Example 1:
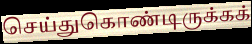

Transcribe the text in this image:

செய்துகொண்டிருக்கக்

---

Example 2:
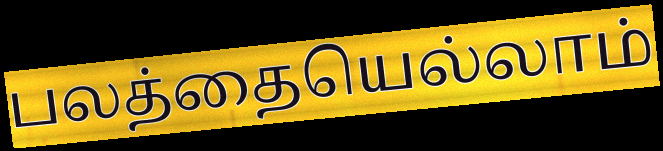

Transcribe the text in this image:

பலத்தையெல்லாம்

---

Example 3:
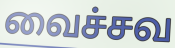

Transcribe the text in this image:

வைச்சவ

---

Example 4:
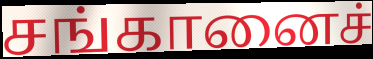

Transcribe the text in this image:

சங்கானைச்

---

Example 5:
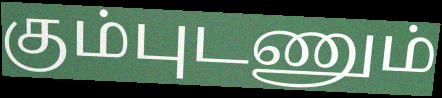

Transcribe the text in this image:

கும்புடணும்